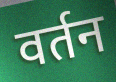
वर्तन